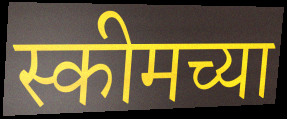
स्कीमच्या